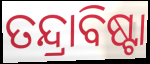
ତନ୍ଦ୍ରାବିଷ୍ଟା